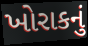
ખોરાકનું